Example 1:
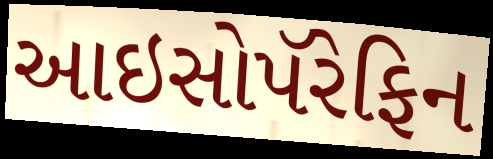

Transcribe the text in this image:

આઇસોપૅરેફિન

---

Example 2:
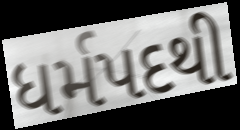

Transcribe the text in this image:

ધર્મપદથી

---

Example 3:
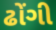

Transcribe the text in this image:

ઢોંગી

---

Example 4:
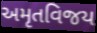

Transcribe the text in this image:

અમૃતવિજય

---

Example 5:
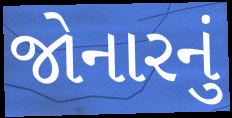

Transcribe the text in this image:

જોનારનું